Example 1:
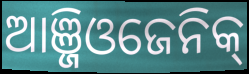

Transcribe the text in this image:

ଆଞ୍ଜିଓଜେନିକ୍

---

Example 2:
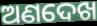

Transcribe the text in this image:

ଅଣଦେଖ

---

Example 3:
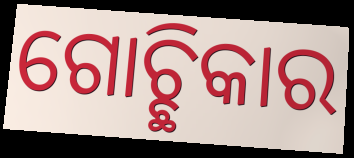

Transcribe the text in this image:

ଗୋଚ୍ଛିକାର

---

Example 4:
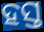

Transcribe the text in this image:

ହସ୍ତ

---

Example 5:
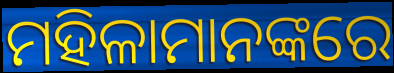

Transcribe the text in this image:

ମହିଳାମାନଙ୍କରେ